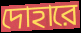
দোহারে